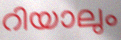
റിയാലും